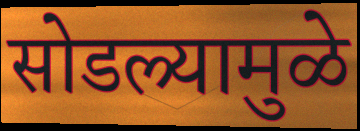
सोडल्यामुळे